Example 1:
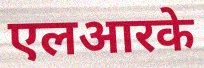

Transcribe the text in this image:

एलआरके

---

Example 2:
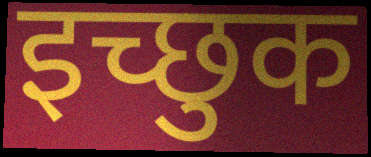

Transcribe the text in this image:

इच्‍छुक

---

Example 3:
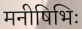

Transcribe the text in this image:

मनीषिभिः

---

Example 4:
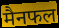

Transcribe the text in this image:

मैनफल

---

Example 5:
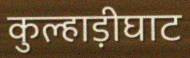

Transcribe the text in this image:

कुल्हाड़ीघाट